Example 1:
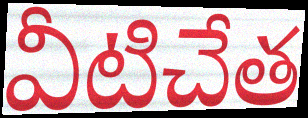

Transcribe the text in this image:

వీటిచేత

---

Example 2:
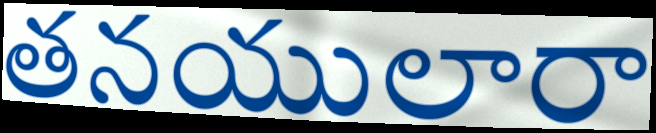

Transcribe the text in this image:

తనయులారా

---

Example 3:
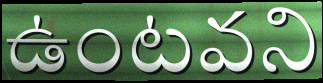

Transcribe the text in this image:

ఉంటవని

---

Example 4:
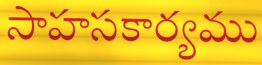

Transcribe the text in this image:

సాహసకార్యము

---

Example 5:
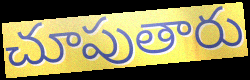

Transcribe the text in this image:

చూపుతారు